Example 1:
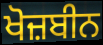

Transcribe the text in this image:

ਖੋਜ਼ਬੀਨ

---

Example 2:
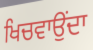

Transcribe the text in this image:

ਖਿਚਵਾਉਂਦਾ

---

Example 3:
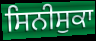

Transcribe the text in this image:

ਸਿਨੀਸੁਕਾ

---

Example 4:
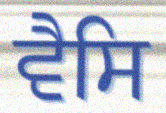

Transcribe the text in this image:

ਵੈਸਿ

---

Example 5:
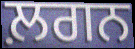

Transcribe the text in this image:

ਲ਼ਗਨ